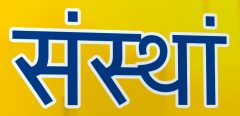
संस्थां